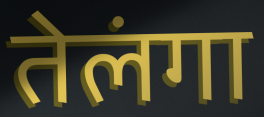
तेलंगा